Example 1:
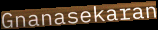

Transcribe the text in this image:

Gnanasekaran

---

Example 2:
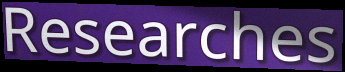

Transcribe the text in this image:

Researches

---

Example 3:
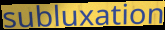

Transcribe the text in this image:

subluxation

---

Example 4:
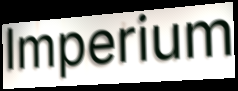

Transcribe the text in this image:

Imperium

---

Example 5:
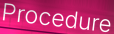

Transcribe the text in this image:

Procedure